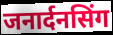
जनार्दनसिंग